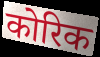
कोरिक